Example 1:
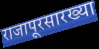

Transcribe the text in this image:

राजापूरसारख्या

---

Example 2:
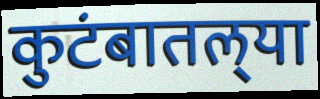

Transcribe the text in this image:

कुटंबातल्या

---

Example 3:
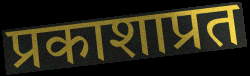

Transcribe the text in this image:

प्रकाशाप्रत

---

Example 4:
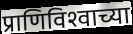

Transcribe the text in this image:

प्राणिविश्वाच्या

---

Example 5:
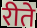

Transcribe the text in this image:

रीते